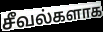
சீவல்களாக